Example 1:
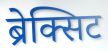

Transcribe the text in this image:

ब्रेक्सिट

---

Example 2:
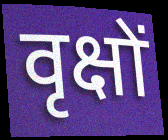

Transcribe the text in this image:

वृक्षों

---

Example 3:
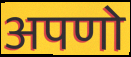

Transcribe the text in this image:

अपणो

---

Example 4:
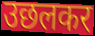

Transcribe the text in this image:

उछलकर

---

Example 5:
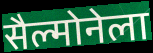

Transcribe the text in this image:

सैल्मोनेला